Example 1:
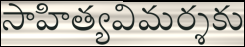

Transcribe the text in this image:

సాహిత్యవిమర్శకు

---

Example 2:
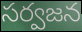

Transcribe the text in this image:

సర్వజన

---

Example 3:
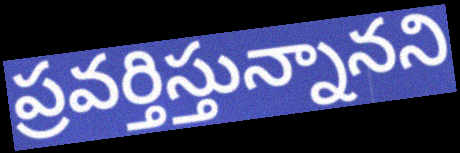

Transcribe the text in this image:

ప్రవర్తిస్తున్నానని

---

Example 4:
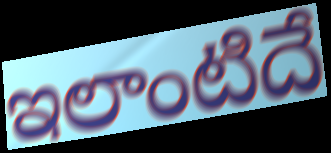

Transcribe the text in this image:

ఇలాంటిదే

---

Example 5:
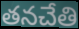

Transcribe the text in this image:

తనచేతి